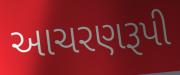
આચરણરૂપી